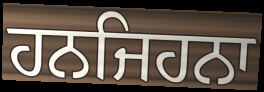
ਹਨਜਿਹਨਾ